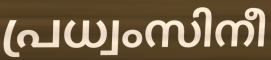
പ്രധ്വംസിനീ